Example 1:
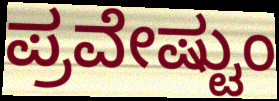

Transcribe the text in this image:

ಪ್ರವೇಷ್ಟುಂ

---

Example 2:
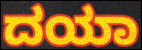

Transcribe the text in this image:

ದಯಾ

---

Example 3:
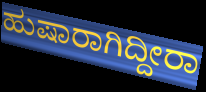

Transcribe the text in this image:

ಹುಷಾರಾಗಿದ್ದೀರಾ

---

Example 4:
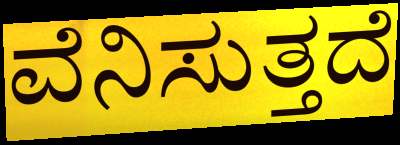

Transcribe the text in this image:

ವೆನಿಸುತ್ತದೆ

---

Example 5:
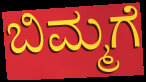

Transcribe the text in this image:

ಬಿಮ್ಮಗೆ